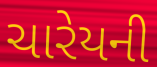
ચારેયની